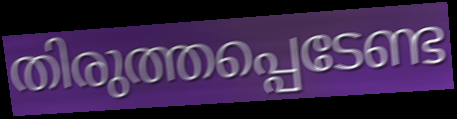
തിരുത്തപ്പെടേണ്ട